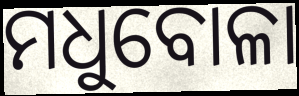
ମଧୁବୋଳା